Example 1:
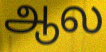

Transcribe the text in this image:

ஆல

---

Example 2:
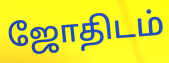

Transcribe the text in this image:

ஜோதிடம்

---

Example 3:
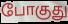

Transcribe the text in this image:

போகுது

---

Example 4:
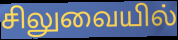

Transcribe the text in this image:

சிலுவையில்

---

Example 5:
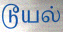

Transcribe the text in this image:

டூயல்